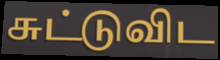
சுட்டுவிட